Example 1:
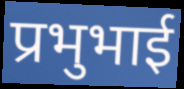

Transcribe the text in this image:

प्रभुभाई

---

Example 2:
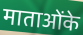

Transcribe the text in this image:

माताओंके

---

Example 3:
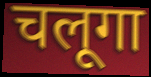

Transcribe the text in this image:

चलूगा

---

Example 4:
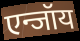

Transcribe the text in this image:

एन्जॉय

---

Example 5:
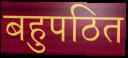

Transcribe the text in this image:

बहुपठित